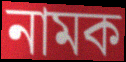
নামক